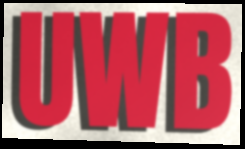
UWB